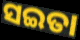
ସଇତା